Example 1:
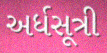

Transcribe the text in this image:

અર્ધસૂત્રી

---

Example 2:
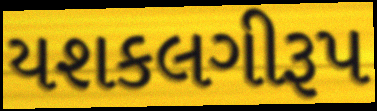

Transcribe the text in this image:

યશકલગીરૂપ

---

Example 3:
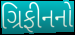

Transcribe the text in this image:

ગ્રિફીનનો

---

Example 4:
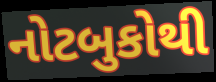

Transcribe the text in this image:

નોટબુકોથી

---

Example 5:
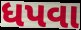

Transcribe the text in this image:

ધપવા